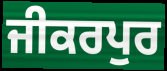
ਜੀਕਰਪੁਰ